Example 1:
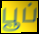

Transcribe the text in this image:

பூப்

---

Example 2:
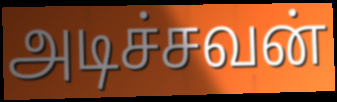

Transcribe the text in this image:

அடிச்சவன்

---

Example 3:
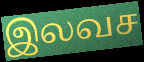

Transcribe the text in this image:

இலவச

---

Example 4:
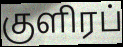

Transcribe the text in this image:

குளிரப்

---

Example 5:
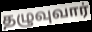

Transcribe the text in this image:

தழுவுவார்